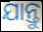
ଯାନ୍ତୁ